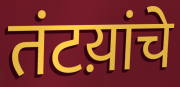
तंटय़ांचे